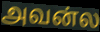
அவன்ல